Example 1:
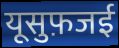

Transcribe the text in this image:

यूसुफ़जई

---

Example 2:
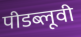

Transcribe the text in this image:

पीडब्लूवी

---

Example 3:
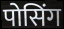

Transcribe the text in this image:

पोसिंग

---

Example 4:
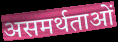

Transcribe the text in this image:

असमर्थताओं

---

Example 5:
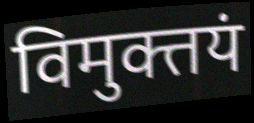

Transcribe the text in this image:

विमुक्तयं